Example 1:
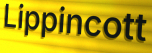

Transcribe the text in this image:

Lippincott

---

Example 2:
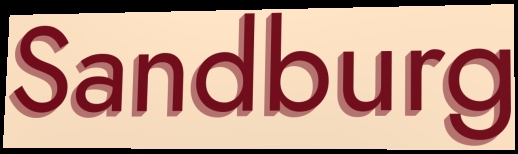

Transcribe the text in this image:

Sandburg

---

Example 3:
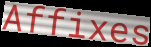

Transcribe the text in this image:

Affixes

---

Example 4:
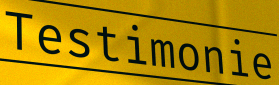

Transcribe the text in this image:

Testimonie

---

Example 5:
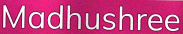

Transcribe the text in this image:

Madhushree